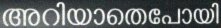
അറിയാതെപോയി